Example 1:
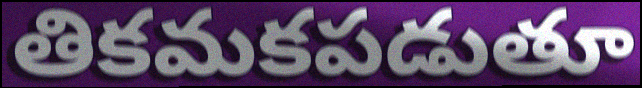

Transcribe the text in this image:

తికమకపడుతూ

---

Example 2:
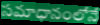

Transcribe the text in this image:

సమాధానంలోనే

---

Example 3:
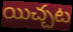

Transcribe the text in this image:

యిచ్చట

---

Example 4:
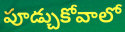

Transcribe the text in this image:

పూడ్చుకోవాలో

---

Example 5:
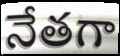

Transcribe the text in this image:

నేతగా